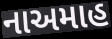
નાઅમાહ